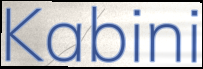
Kabini